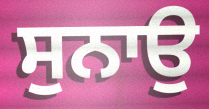
ਸੁਨਾਉ